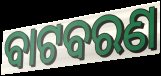
ବାଟବରଣ